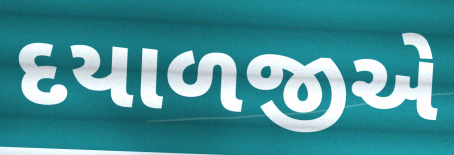
દયાળજીએ